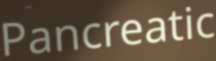
Pancreatic